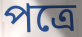
পত্রে